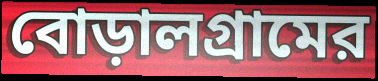
বোড়ালগ্রামের